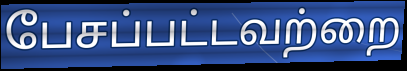
பேசப்பட்டவற்றை